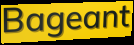
Bageant